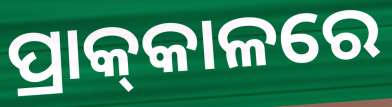
ପ୍ରାକ୍‌କାଳରେ